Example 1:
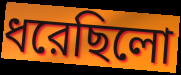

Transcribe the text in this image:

ধরেছিলো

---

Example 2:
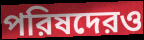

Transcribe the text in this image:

পরিষদেরও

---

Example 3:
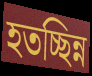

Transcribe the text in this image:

হতচ্ছিন্ন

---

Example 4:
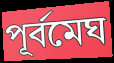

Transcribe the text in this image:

পূর্বমেঘ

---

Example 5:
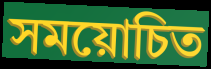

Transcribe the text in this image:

সময়োচিত